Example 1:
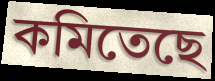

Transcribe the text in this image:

কমিতেছে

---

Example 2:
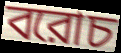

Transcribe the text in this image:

বরোচ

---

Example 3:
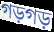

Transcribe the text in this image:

গড়গড়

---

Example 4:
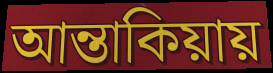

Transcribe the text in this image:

আন্তাকিয়ায়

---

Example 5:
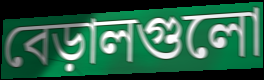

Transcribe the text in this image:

বেড়ালগুলো